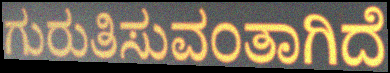
ಗುರುತಿಸುವಂತಾಗಿದೆ